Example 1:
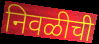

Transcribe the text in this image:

निवळीची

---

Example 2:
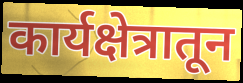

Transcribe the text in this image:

कार्यक्षेत्रातून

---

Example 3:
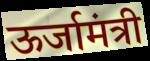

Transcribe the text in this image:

ऊर्जामंत्री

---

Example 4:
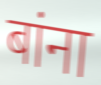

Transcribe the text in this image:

बांना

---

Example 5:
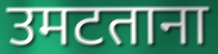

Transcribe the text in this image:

उमटताना